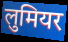
लुमियर